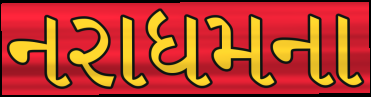
નરાધમના